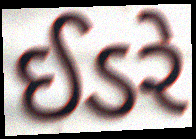
ઈડરે